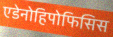
एडेनोहिपोफिसिस